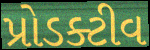
પ્રોડક્ટીવ